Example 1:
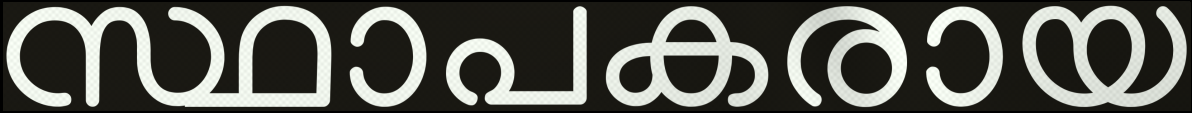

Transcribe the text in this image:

സ്ഥാപകരായ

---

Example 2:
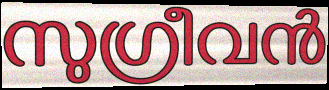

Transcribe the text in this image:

സുഗ്രീവൻ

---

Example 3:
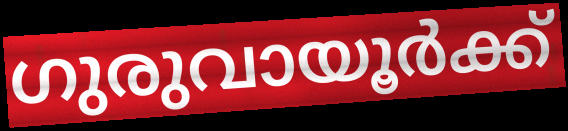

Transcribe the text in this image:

ഗുരുവായൂർക്ക്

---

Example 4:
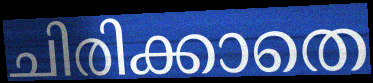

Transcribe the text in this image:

ചിരിക്കാതെ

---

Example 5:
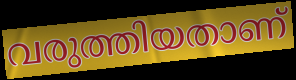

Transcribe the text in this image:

വരുത്തിയതാണ്